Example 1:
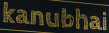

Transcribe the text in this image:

kanubhai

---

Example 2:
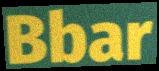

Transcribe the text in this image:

Bbar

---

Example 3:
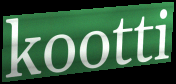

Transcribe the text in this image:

kootti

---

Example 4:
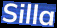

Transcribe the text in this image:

Silla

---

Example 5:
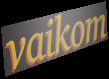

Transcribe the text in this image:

vaikom